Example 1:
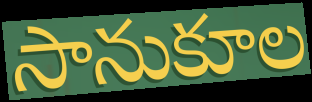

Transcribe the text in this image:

సానుకూల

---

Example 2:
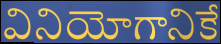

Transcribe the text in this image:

వినియోగానికే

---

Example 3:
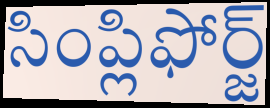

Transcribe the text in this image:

సింప్లిఫోర్జ్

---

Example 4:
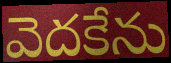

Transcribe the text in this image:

వెదకేను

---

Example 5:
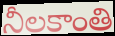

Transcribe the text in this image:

నీలకాంతి